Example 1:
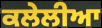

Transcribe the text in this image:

ਕਲੇਲੀਆ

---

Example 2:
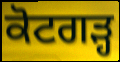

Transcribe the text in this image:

ਕੋਟਗੜ੍ਹ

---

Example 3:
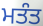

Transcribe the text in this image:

ਮਤੰਤ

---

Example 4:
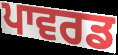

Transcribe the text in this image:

ਪਾਵਰਡ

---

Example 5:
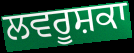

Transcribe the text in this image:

ਲਵਰੂਸ਼ਕਾ